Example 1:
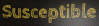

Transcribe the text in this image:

Susceptible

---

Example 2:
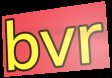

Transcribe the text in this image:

bvr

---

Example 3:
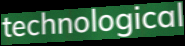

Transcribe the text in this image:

technological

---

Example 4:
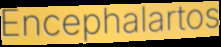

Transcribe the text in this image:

Encephalartos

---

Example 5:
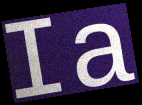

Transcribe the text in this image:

Ia